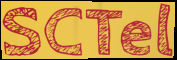
SCTel